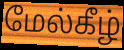
மேல்கீழ்